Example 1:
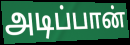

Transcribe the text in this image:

அடிப்பான்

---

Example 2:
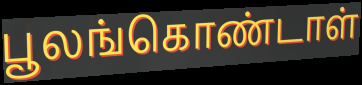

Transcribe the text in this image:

பூலங்கொண்டாள்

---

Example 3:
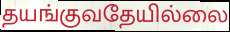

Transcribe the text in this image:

தயங்குவதேயில்லை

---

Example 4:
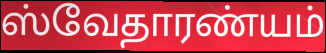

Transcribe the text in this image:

ஸ்வேதாரண்யம்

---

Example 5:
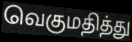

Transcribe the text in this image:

வெகுமதித்து